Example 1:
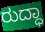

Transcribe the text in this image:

ರುದ್ಧಾ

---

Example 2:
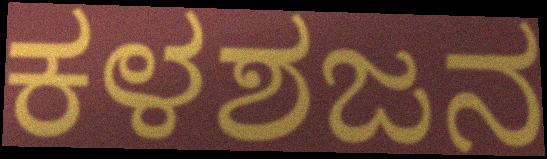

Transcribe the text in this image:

ಕಳಶಜನ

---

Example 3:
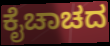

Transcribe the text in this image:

ಕೈಚಾಚದ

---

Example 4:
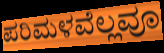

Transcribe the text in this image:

ಪರಿಮಳವೆಲ್ಲವೂ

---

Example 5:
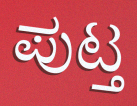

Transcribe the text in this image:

ಪುಟ್ತ